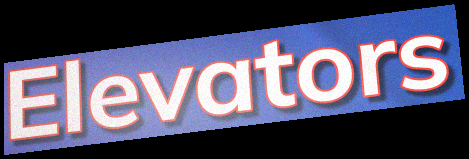
Elevators